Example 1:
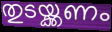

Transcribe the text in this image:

തുടയ്ക്കണം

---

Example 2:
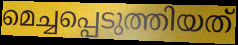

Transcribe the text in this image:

മെച്ചപ്പെടുത്തിയത്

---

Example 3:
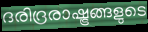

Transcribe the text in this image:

ദരിദ്രരാഷ്ട്രങ്ങളുടെ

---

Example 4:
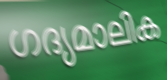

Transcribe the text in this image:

ഗദ്യമാലിക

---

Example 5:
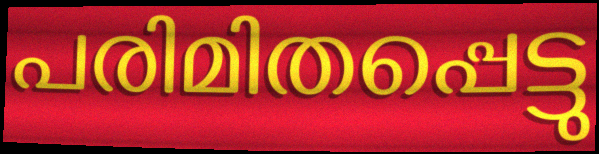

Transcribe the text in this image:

പരിമിതപ്പെട്ടു